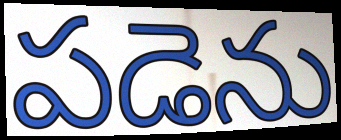
పడెను